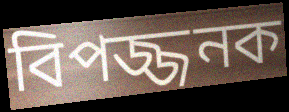
বিপজ্জনক